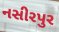
નસીરપુર